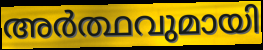
അർത്ഥവുമായി